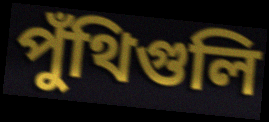
পুঁথিগুলি